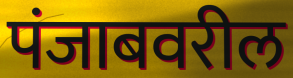
पंजाबवरील